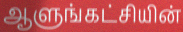
ஆளுங்கட்சியின்